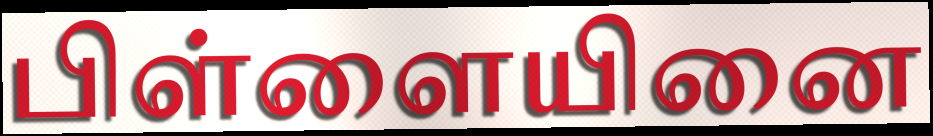
பிள்ளையினை